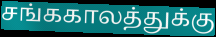
சங்ககாலத்துக்கு